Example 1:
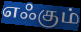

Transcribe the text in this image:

எஃகும்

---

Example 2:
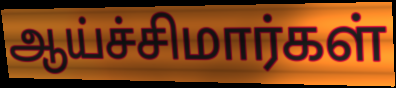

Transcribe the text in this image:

ஆய்ச்சிமார்கள்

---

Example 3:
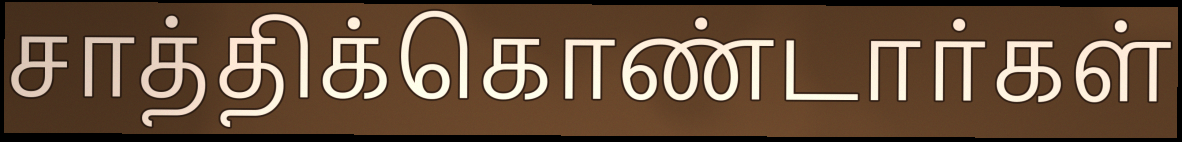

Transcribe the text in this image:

சாத்திக்கொண்டார்கள்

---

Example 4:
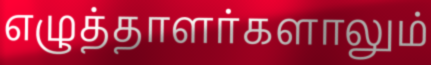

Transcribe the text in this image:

எழுத்தாளர்களாலும்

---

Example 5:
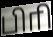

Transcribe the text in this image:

பிரி